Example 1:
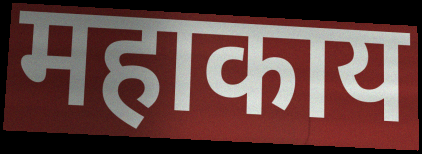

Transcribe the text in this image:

महाकाय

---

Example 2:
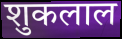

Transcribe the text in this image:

शुकलाल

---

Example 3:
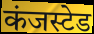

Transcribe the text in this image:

कंजस्टेड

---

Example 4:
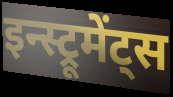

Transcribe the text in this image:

इन्स्ट्रूमेंट्स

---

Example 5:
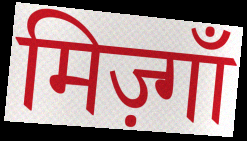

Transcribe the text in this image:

मिज़्गाँ